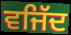
ਵਜਿੱਦ